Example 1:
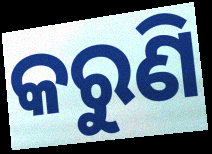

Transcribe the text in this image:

କରୁଣି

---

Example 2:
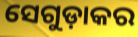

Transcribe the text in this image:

ସେଗୁଡ଼ାକର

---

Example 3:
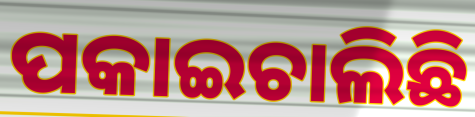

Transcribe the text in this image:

ପକାଇଚାଲିଛି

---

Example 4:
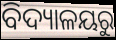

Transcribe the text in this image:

ବିଦ୍ୟାଳୟରୁ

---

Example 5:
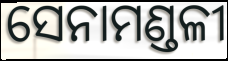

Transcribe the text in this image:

ସେନାମଣ୍ଡଳୀ